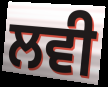
ਲਵੀ